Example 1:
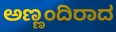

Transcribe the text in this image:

ಅಣ್ಣಂದಿರಾದ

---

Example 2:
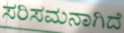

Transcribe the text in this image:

ಸರಿಸಮನಾಗಿದೆ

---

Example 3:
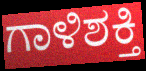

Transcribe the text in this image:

ಗಾಳಿಶಕ್ತಿ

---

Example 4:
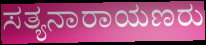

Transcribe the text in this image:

ಸತ್ಯನಾರಾಯಣರು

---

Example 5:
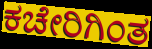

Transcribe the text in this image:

ಕಚೇರಿಗಿಂತ